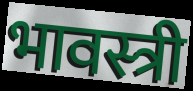
भावस्त्री